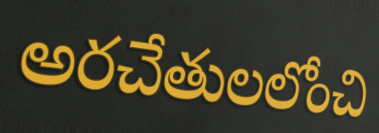
అరచేతులలోంచి